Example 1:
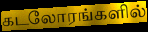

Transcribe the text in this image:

கடலோரங்களில்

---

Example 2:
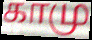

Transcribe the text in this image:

காமு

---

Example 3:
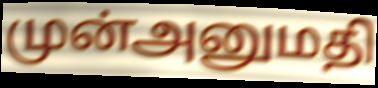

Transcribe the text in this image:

முன்அனுமதி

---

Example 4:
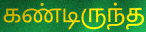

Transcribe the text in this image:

கண்டிருந்த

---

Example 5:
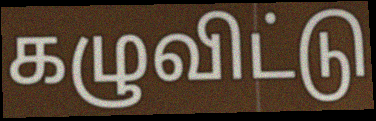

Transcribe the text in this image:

கழுவிட்டு